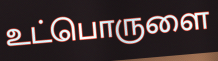
உட்பொருளை